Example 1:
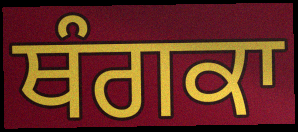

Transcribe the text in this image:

ਥੰਗਕਾ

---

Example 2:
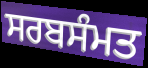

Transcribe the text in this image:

ਸਰਬਸੰਮਤ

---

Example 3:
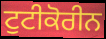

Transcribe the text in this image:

ਟੁਟੀਕੋਰੀਨ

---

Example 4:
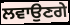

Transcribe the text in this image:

ਲਵਾਉਣਗੇ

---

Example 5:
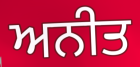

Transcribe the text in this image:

ਅਨੀਤ